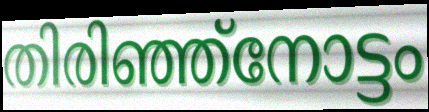
തിരിഞ്ഞ്നോട്ടം